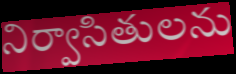
నిర్వాసితులను